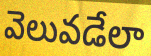
వెలువడేలా